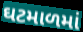
ઘટમાળમાં